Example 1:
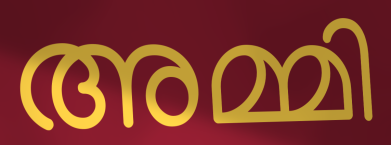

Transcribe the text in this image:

അമ്മി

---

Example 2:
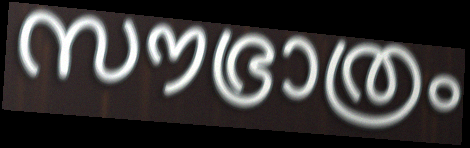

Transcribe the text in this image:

സൗഭ്രാത്രം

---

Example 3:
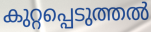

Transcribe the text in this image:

കുറ്റപ്പെടുത്തൽ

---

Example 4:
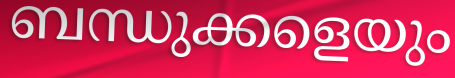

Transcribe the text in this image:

ബന്ധുക്കളെയും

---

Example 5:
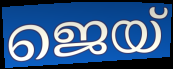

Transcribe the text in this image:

ജെയ്